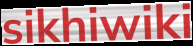
sikhiwiki